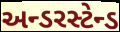
અન્ડરસ્ટેન્ડ